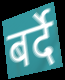
बर्दे